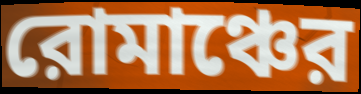
রোমাঞ্চের